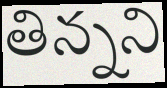
తిన్నని